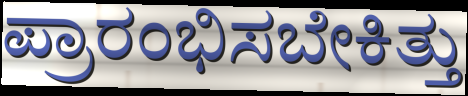
ಪ್ರಾರಂಭಿಸಬೇಕಿತ್ತು